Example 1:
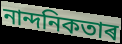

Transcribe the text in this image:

নান্দনিকতাৰ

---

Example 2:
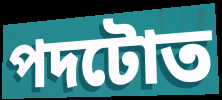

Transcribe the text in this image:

পদটোত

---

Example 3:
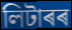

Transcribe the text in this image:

লিটাৰৰ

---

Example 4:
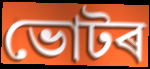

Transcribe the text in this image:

ভোটৰ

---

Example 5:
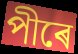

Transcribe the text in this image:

পীৰে